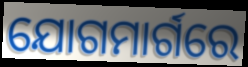
ଯୋଗମାର୍ଗରେ